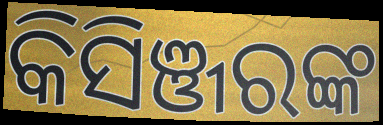
କିସିଞ୍ଜରଙ୍କ